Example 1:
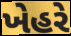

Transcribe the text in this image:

ખેહરે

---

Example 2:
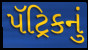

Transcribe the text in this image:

પૅટ્રિકનું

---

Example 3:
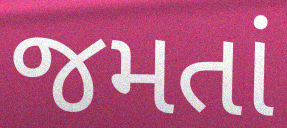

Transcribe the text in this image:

જમતાં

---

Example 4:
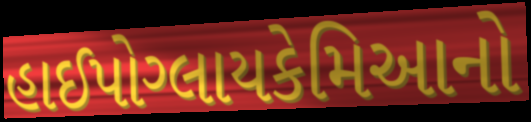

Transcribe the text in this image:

હાઈપોગ્લાયકેમિઆનો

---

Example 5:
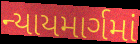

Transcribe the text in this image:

ન્યાયમાર્ગમાં